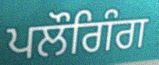
ਪਲੌਗਿੰਗ